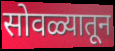
सोवळ्यातून